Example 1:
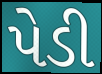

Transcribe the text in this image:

પેડી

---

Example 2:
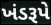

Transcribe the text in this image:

ખંડરૂપે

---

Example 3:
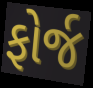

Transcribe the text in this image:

ફોર્જ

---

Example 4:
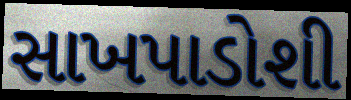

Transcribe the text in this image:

સાખપાડોશી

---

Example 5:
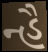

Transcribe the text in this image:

ન્હૈ